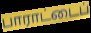
பாராட்டைப்